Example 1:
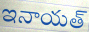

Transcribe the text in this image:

ఇనాయత్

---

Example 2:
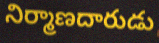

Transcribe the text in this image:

నిర్మాణదారుడు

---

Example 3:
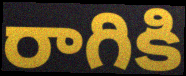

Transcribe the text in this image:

రాగికి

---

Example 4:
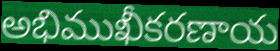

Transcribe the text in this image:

అభిముఖీకరణాయ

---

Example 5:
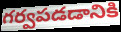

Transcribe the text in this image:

గర్వపడడానికి